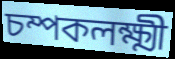
চম্পকলক্ষ্মী